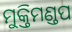
ମୁକ୍ତିମଣ୍ଡପ